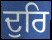
ਦੁਰਿ